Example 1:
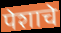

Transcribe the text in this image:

पेशाचे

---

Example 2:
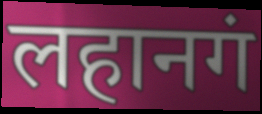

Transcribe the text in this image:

लहानगं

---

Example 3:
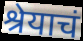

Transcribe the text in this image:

श्रेयाचं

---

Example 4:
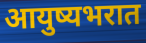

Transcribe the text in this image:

आयुष्यभरात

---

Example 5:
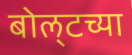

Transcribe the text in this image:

बोल्टच्या